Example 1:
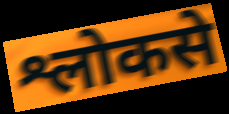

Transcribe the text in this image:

श्लोकसे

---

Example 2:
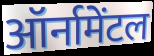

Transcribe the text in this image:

ऑर्नामेंटल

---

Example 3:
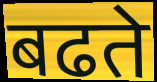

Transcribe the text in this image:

बढते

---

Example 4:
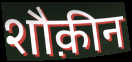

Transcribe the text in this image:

शौक़ीन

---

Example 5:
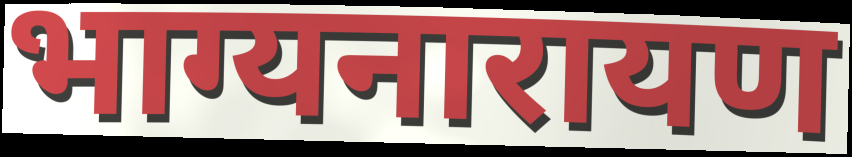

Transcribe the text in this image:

भाग्यनारायण